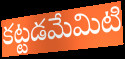
కట్టడమేమిటి